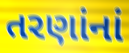
તરણાંનાં